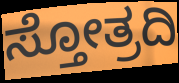
ಸ್ತೋತ್ರದಿ